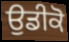
ਉਡੀਕੋ